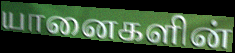
யானைகளின்